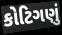
કોટિગણું